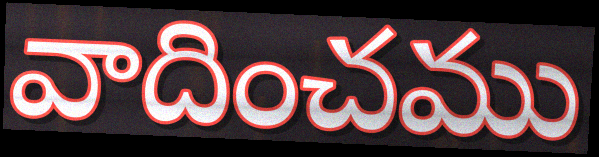
వాదించము